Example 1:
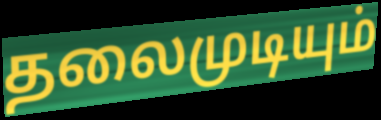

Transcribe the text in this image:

தலைமுடியும்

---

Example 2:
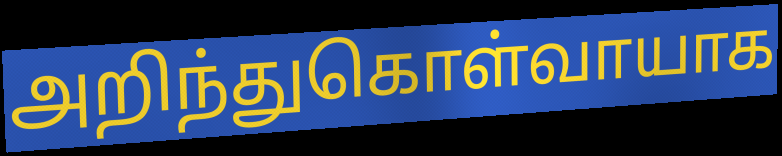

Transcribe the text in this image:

அறிந்துகொள்வாயாக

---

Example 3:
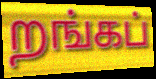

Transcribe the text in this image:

றங்கப்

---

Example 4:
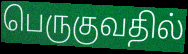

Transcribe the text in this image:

பெருகுவதில்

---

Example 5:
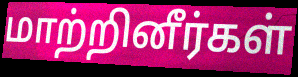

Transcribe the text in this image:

மாற்றினீர்கள்